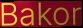
Bakor